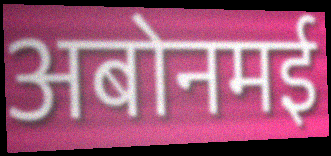
अबोनमई